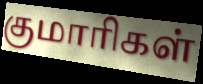
குமாரிகள்